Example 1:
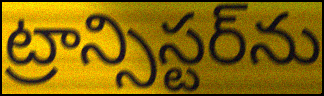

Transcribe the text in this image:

ట్రాన్సిస్టర్‌ను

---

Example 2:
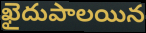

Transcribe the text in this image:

ఖైదుపాలయిన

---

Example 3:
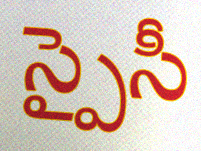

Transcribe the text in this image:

స్పైసీ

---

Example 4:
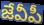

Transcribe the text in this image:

జేవీపీ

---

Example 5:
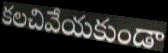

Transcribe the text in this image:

కలచివేయకుండా